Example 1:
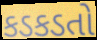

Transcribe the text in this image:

કડકડતો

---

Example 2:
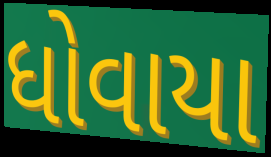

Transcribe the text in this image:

ધોવાયા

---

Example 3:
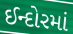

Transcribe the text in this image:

ઈન્દોરમાં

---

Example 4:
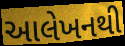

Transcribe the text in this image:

આલેખનથી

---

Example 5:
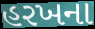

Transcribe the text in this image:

હરખના